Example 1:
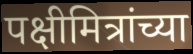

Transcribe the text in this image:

पक्षीमित्रांच्या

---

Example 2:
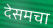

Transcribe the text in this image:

देसमचा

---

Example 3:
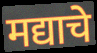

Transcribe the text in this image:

मद्याचे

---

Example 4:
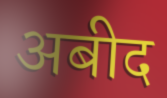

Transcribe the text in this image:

अबीद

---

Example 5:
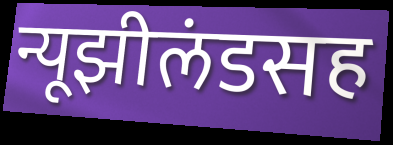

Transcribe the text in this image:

न्यूझीलंडसह